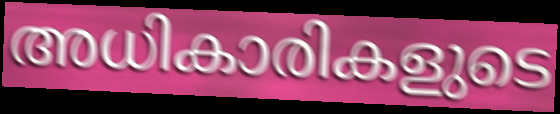
അധികാരികളുടെ